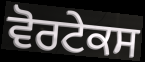
ਵੋਰਟੇਕਸ